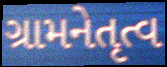
ગ્રામનેતૃત્વ